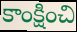
కాంక్షించి